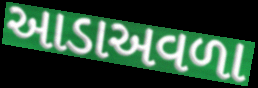
આડાઅવળા